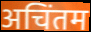
अचिंतम